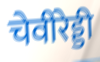
चेवीरेड्डी